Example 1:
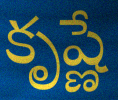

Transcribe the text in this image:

కృష్ణే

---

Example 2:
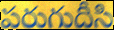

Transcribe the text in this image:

పరుగుదీసి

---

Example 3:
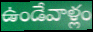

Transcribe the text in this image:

ఉండేవాళ్లం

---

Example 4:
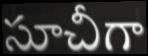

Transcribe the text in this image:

సూచీగా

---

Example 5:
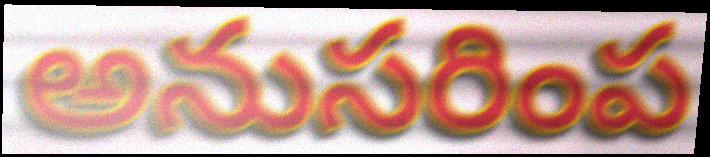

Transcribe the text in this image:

అనుసరింప